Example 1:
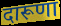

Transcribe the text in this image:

दारूणा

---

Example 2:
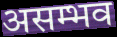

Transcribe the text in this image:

असम्‍भव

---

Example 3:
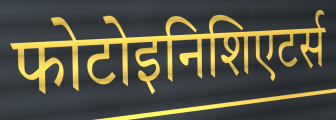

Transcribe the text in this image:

फोटोइनिशिएटर्स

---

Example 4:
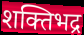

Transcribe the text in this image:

शक्तिभद्र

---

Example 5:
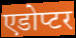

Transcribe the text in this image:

एडोप्टर